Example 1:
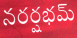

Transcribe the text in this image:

నరర్షభమ్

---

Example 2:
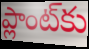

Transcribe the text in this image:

ప్లాంట్‌కు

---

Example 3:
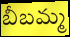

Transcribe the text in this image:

బీబమ్మ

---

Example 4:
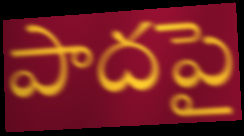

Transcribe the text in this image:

పాదపై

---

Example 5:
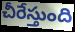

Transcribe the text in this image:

చీరేస్తుంది